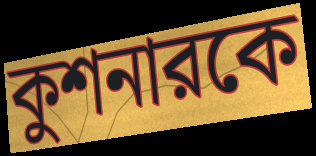
কুশনারকে